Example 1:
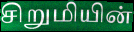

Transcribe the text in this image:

சிறுமியின்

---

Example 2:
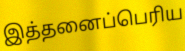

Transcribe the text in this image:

இத்தனைப்பெரிய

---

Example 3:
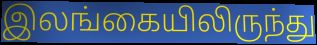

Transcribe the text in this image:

இலங்கையிலிருந்து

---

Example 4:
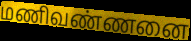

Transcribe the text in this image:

மணிவண்ணனை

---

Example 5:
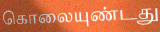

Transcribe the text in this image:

கொலையுண்டது